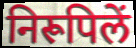
निरूपिलें